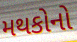
મથકોનો